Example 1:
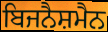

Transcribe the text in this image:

ਬਿਜਨੈਸ਼ਮੈਨ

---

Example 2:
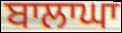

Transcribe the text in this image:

ਬਾਲਾਘਾ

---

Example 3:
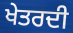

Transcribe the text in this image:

ਖੇਤਰਦੀ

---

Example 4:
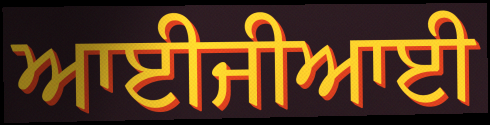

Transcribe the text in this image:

ਆਈਜੀਆਈ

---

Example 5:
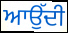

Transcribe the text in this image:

ਆਉੱਦੀ